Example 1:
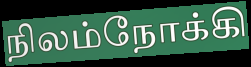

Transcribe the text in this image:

நிலம்நோக்கி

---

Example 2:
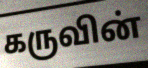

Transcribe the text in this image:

கருவின்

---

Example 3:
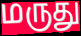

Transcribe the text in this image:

மருது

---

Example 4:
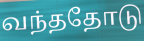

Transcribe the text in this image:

வந்ததோடு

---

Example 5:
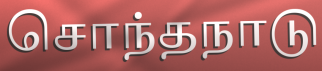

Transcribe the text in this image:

சொந்தநாடு